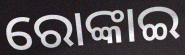
ରୋଙ୍କାଇ